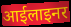
आईलाइनर